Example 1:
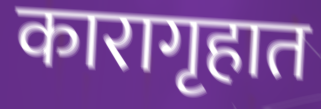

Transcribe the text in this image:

कारागृहात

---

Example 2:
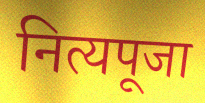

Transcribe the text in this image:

नित्यपूजा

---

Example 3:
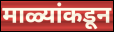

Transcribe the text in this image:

माळ्यांकडून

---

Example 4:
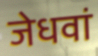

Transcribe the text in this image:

जेधवां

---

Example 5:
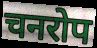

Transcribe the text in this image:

चनरोप